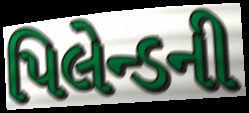
પિલેન્ડની